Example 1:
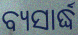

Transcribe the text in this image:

ବ୍ୟସାର୍ଦ୍ଧ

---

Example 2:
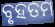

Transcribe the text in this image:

ବୃହତମ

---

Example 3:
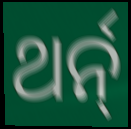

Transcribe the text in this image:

ଥର୍ନ୍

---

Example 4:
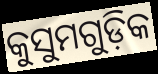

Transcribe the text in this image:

କୁସୁମଗୁଡ଼ିକ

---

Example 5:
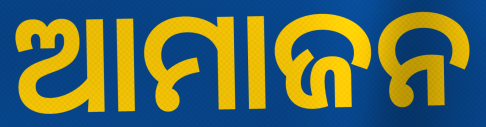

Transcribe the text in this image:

ଆମାଜନ